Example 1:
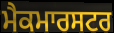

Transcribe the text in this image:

ਮੈਕਮਾਰਸਟਰ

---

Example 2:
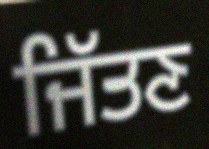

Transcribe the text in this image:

ਜਿੱਤਣ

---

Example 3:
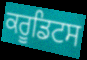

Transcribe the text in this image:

ਕਰੂਡਿਟਸ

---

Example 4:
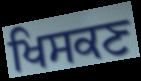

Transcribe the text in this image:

ਖਿਸਕਣ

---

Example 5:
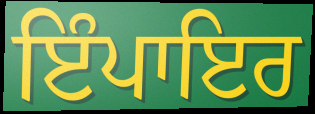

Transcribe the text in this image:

ਇੰਪਾਇਰ